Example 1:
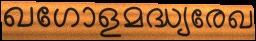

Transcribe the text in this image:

ഖഗോളമദ്ധ്യരേഖ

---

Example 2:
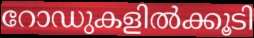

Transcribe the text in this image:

റോഡുകളിൽക്കൂടി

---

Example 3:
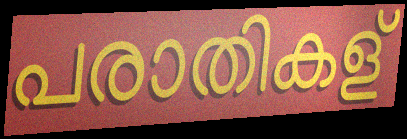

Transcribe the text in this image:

പരാതികള്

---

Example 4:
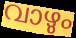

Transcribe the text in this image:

വാഴും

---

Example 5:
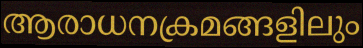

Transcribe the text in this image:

ആരാധനക്രമങ്ങളിലും